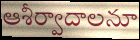
ఆశీర్వాదాలనూ